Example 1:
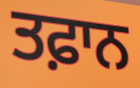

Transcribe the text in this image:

ਤਫ਼ਾਨ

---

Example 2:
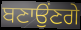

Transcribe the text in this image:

ਬਣਾਉਂਣਗੇ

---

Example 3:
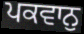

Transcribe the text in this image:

ਪਕਵਾਨੁ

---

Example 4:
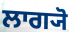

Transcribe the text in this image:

ਲਾਗ੍ਯੋ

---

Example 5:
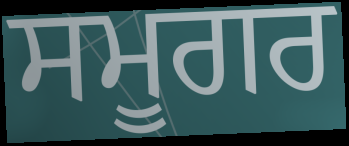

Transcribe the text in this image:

ਸਮੂਗਰ